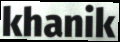
khanik